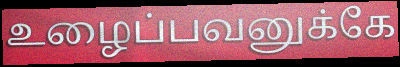
உழைப்பவனுக்கே